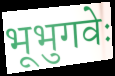
भूभुगवेः